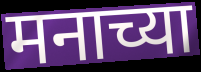
मनाच्या